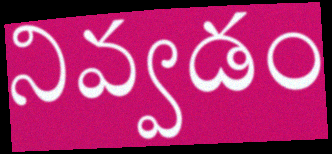
నివ్వడం